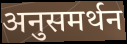
अनुसमर्थन